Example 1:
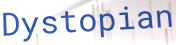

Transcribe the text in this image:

Dystopian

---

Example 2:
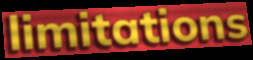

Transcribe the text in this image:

limitations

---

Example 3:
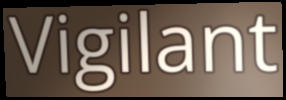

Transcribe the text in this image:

Vigilant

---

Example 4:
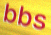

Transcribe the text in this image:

bbs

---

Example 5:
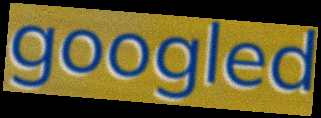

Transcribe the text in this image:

googled